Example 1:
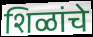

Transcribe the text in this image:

शिळांचे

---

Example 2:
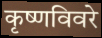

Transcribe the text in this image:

कृष्णविवरे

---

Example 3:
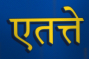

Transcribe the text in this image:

एतत्ते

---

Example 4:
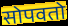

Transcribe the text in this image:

सोपवतो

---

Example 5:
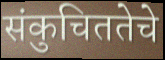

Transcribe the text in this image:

संकुचिततेचे